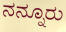
ನನ್ನೂರು